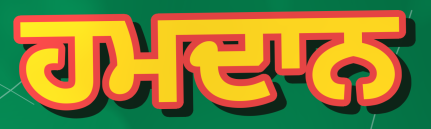
ਹਮਦਾਨ